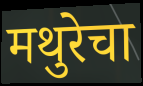
मथुरेचा